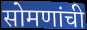
सोमणांची